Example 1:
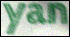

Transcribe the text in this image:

yan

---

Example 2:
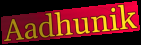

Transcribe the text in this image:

Aadhunik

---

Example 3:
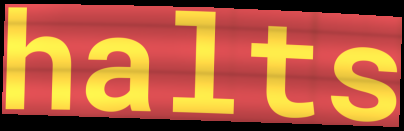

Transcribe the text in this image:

halts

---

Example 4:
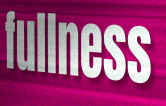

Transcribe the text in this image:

fullness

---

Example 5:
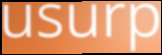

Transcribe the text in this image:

usurp